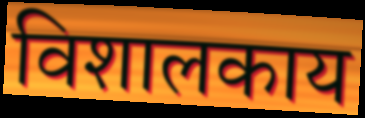
विशालकाय